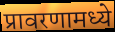
प्रावरणामध्ये